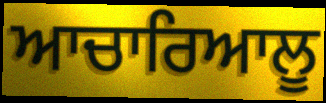
ਆਚਾਰਿਆਲੂ